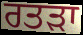
ਰਤੜਾ